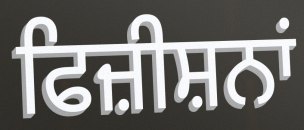
ਫਿਜ਼ੀਸ਼ਨਾਂ